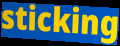
sticking